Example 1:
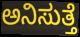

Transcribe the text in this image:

ಅನಿಸುತ್ತೆ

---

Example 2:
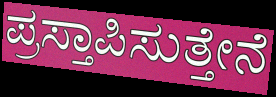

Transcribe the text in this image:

ಪ್ರಸ್ತಾಪಿಸುತ್ತೇನೆ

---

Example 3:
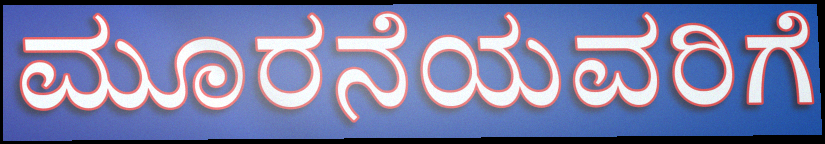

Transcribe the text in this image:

ಮೂರನೆಯವರಿಗೆ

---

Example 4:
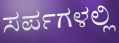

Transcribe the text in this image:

ಸರ್ಪಗಳಲ್ಲಿ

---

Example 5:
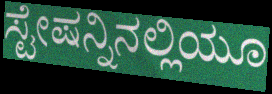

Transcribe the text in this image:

ಸ್ಟೇಷನ್ನಿನಲ್ಲಿಯೂ